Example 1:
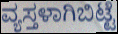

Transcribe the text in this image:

ವ್ಯಸ್ತಳಾಗಿಬಿಟ್ಟೆ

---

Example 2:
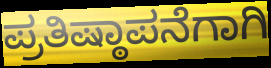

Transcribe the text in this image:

ಪ್ರತಿಷ್ಠಾಪನೆಗಾಗಿ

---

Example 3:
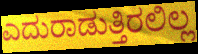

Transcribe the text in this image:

ಎದುರಾಡುತ್ತಿರಲಿಲ್ಲ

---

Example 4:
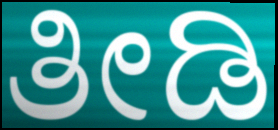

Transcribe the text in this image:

ತೀಡಿ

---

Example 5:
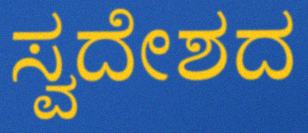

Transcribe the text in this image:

ಸ್ವದೇಶದ